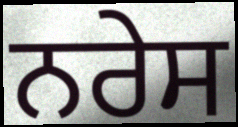
ਨਰੇਸ